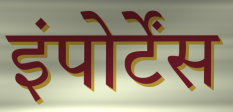
इंपोर्टेंस